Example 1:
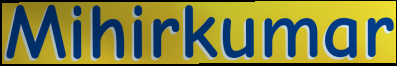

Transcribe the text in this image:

Mihirkumar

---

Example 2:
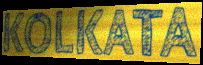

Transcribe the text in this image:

KOLKATA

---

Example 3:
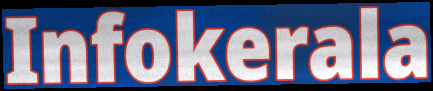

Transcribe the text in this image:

Infokerala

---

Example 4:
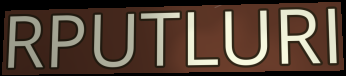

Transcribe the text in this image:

RPUTLURI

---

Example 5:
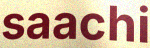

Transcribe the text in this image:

saachi